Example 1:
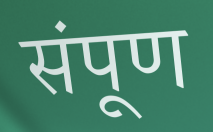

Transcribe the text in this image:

संपूण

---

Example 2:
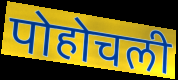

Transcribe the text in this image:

पोहोचली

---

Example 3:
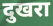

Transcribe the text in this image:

दुखरा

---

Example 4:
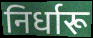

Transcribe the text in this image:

निर्धारू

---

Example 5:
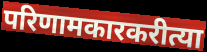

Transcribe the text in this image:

परिणामकारकरीत्या